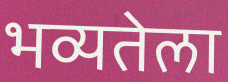
भव्यतेला